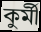
কুৰ্মী